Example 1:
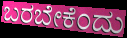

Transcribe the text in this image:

ಬರಬೇಕೆಂದು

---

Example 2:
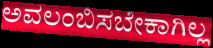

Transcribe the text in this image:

ಅವಲಂಬಿಸಬೇಕಾಗಿಲ್ಲ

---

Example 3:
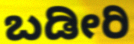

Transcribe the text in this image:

ಬಡೀರಿ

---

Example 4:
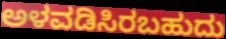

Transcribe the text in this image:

ಅಳವಡಿಸಿರಬಹುದು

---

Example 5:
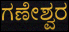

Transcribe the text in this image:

ಗಣೇಶ್ವರ